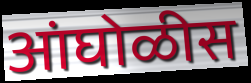
आंघोळीस